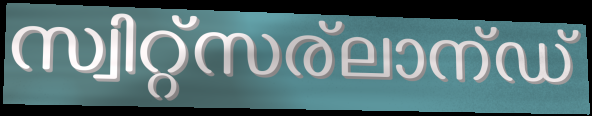
സ്വിറ്റ്സര്ലാന്ഡ്